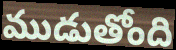
ముడుతోంది